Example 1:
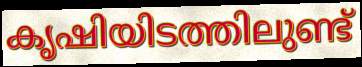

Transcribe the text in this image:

കൃഷിയിടത്തിലുണ്ട്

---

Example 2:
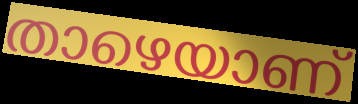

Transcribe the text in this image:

താഴെയാണ്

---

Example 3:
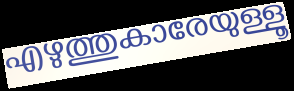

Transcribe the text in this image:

എഴുത്തുകാരേയുള്ളൂ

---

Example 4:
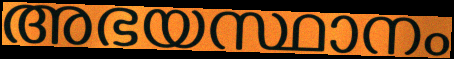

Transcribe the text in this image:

അഭയസ്ഥാനം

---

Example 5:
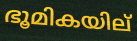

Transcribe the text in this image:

ഭൂമികയില്